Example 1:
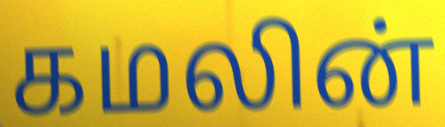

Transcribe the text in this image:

கமலின்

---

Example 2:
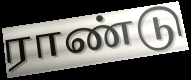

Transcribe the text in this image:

ராண்டு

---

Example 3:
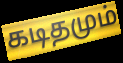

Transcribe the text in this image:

கடிதமும்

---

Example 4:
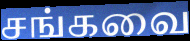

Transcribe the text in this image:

சங்கவை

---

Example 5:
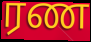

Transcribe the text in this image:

ரண